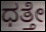
ಧತ್ತೇ